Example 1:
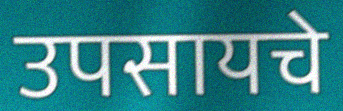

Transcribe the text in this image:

उपसायचे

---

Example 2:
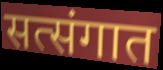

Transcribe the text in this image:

सत्संगात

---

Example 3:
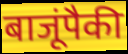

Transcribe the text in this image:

बाजूंपैकी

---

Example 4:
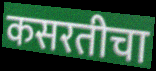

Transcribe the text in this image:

कसरतीचा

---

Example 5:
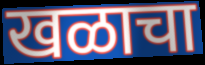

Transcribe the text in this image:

खळाचा